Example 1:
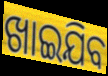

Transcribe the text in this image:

ଖାଇଯିବ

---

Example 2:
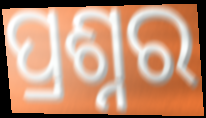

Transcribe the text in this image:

ପ୍ରଶ୍ନର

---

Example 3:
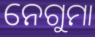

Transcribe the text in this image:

ନେଗୁମା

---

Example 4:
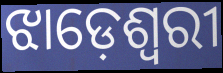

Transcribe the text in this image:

ଝାଡ଼େଶ୍ୱରୀ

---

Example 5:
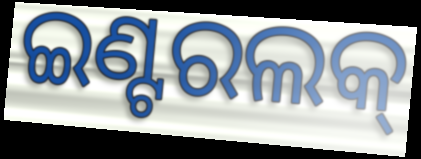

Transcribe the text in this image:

ଇଣ୍ଟରଲକ୍